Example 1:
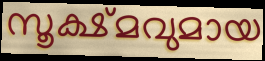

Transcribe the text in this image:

സൂക്ഷ്മവുമായ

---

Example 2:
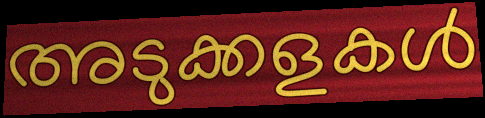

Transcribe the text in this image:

അടുക്കളകൾ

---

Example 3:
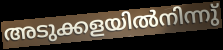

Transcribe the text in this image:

അടുക്കളയിൽനിന്നു്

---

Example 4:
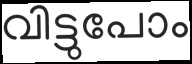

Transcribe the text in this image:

വിട്ടുപോം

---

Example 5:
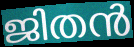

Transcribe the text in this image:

ജിതൻ